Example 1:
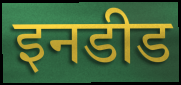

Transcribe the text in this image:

इनडीड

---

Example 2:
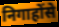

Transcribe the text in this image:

निगाहोंसे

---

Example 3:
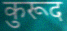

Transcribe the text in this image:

कुरूद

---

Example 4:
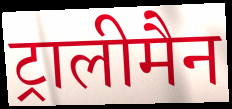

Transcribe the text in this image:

ट्रालीमैन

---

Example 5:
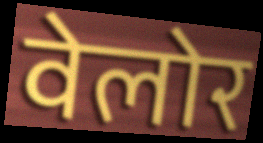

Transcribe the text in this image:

वेलोर